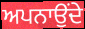
ਅਪਨਾਉਂਦੇ